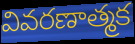
వివరణాత్మక